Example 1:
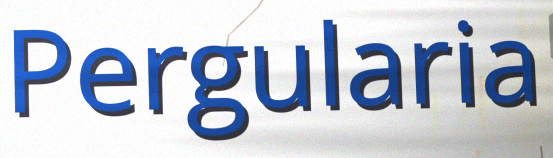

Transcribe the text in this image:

Pergularia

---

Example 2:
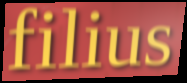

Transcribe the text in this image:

filius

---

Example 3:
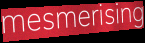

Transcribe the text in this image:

mesmerising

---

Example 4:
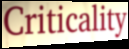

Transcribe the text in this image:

Criticality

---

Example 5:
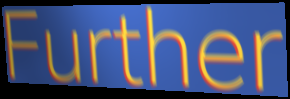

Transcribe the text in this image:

Further